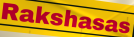
Rakshasas